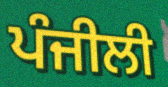
ਪੰਜੀਲੀ